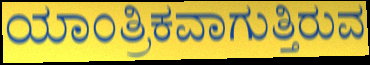
ಯಾಂತ್ರಿಕವಾಗುತ್ತಿರುವ